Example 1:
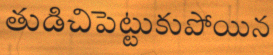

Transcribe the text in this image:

తుడిచిపెట్టుకుపోయిన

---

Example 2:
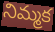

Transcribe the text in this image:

నిమ్మక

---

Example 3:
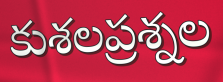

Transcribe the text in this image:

కుశలప్రశ్నల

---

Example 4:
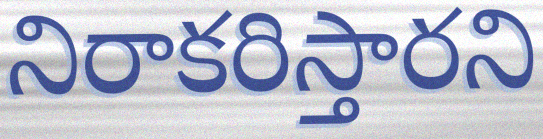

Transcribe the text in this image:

నిరాకరిస్తారని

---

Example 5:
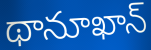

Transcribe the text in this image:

థానూఖాన్